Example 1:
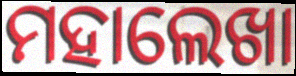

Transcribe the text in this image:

ମହାଲେଖା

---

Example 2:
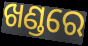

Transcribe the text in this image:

ଖଣ୍ଡରେ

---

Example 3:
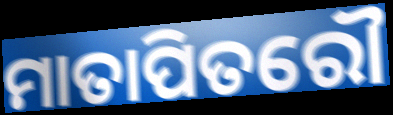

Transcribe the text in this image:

ମାତାପିତରୌ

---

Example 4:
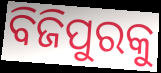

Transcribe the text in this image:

ବିଜିପୁରକୁ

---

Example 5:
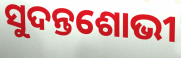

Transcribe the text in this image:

ସୁଦନ୍ତଶୋଭୀ